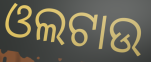
ଓଲଟାଉ